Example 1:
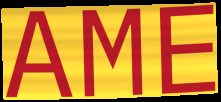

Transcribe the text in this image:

AME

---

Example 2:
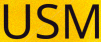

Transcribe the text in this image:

USM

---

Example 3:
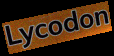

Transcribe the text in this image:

Lycodon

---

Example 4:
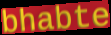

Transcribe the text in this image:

bhabte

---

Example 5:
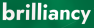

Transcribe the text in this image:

brilliancy